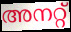
അനറ്റ്